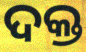
ଦକ୍ତ